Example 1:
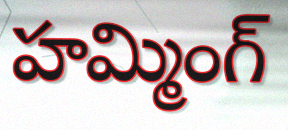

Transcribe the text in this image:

హమ్మింగ్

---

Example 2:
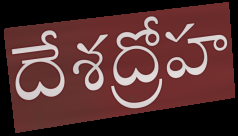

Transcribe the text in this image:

దేశద్రోహ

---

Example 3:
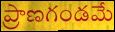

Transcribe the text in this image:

ప్రాణగండమే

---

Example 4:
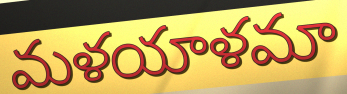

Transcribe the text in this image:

మళయాళమా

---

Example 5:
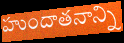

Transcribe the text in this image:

హుందాతనాన్ని